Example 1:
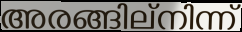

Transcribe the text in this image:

അരങ്ങില്നിന്ന്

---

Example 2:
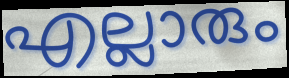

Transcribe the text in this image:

എല്ലാരും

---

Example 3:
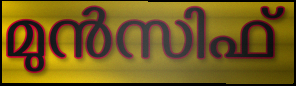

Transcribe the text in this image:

മുൻസിഫ്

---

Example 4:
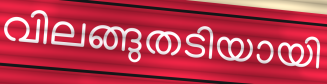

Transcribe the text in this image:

വിലങ്ങുതടിയായി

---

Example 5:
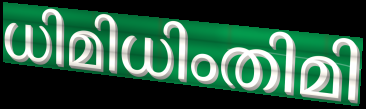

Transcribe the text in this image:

ധിമിധിംതിമി